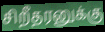
சிறீதரனுக்கு